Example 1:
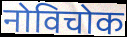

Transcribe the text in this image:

नोविचोक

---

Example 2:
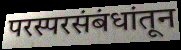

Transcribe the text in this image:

परस्परसंबंधांतून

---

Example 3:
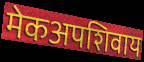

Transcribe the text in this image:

मेकअपशिवाय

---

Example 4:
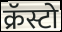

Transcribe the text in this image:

क्रॅस्टो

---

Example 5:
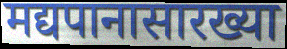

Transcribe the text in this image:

मद्यपानासारख्या